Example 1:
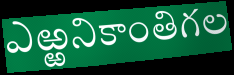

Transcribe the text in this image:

ఎఱ్ఱనికాంతిగల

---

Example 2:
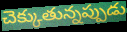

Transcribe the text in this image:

చెక్కుతున్నప్పుడు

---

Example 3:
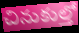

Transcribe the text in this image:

చినుకుల్తో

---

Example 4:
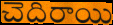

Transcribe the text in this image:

చెదిరాయి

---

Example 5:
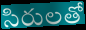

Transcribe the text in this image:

సిరులతో